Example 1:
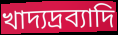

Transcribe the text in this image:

খাদ্যদ্রব্যাদি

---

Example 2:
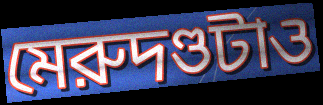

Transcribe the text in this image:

মেরুদণ্ডটাও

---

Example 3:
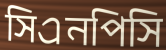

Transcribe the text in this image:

সিএনপিসি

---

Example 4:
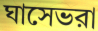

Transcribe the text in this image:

ঘাসেভরা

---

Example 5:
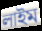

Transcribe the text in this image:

লাইম